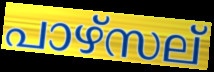
പാഴ്സല്